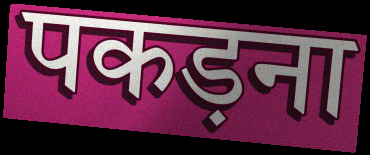
पकड़ना